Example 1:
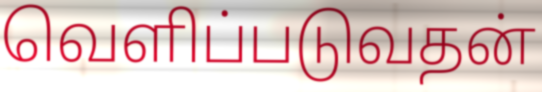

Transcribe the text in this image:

வெளிப்படுவதன்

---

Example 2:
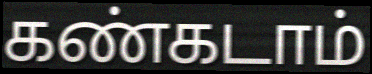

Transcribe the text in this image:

கண்கடாம்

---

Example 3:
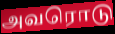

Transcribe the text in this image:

அவரொடு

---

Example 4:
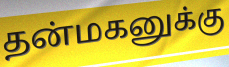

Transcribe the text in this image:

தன்மகனுக்கு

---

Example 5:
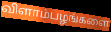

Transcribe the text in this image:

விளாம்பழங்களை